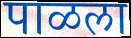
पाळला